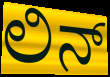
ಲಿನ್